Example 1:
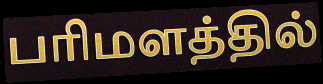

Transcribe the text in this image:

பரிமளத்தில்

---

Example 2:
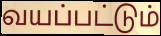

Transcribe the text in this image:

வயப்பட்டும்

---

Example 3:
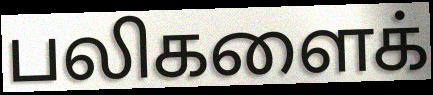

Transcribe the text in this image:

பலிகளைக்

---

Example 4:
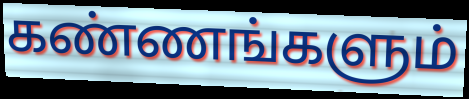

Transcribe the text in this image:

கண்ணங்களும்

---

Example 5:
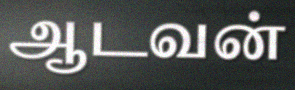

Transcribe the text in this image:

ஆடவன்